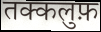
तक्कलुफ़